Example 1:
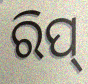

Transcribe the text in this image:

ରିପ୍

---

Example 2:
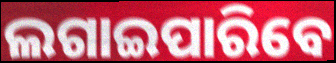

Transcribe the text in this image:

ଲଗାଇପାରିବେ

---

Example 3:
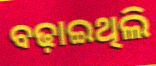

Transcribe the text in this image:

ବଢ଼ାଇଥିଲି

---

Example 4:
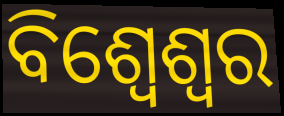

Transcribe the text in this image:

ବିଶ୍ୱେଶ୍ୱର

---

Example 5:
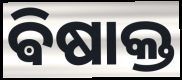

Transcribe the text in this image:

ଵିଷାକ୍ତ